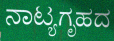
ನಾಟ್ಯಗೃಹದ